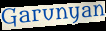
Garunyan